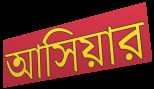
আসিয়ার